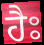
ਹੈਃ